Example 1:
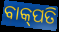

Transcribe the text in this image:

ବାକ୍‌ପତି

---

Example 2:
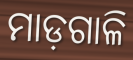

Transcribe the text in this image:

ମାଡ଼ଗାଳି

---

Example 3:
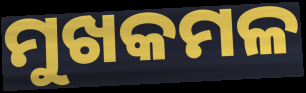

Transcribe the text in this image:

ମୁଖକମଳ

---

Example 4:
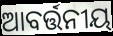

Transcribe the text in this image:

ଆବର୍ତ୍ତନୀୟ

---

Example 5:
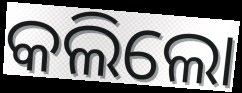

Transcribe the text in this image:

କଲିଲୋ